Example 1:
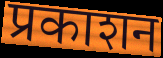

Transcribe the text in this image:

प्रकाशन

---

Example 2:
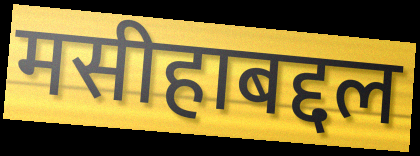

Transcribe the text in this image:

मसीहाबद्दल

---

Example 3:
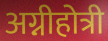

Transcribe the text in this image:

अग्नीहोत्री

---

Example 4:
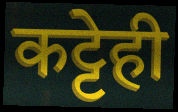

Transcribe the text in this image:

कट्टेही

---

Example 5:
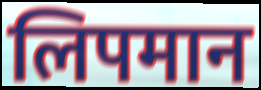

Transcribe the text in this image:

लिपमान